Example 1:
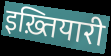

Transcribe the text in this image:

इख़्तियारी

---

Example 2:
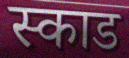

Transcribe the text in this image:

स्काड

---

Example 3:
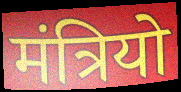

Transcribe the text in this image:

मंत्रियो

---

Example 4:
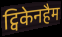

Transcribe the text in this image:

ट्विकेनहैम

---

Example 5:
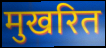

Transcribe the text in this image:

मुखरित